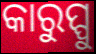
କାରୁପ୍ପୁ